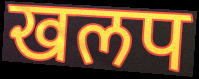
खलप